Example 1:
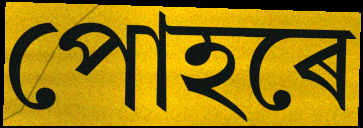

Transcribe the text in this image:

পোহৰে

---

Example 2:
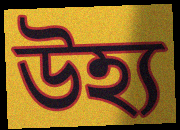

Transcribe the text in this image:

উহ্য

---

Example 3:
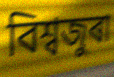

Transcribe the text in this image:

বিশ্বজুৰা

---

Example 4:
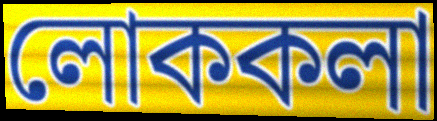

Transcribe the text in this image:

লোককলা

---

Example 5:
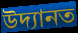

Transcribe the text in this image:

উদ্যানত